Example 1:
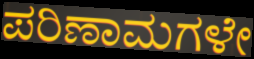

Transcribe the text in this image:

ಪರಿಣಾಮಗಳೇ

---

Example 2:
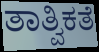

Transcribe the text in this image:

ತಾತ್ವಿಕತೆ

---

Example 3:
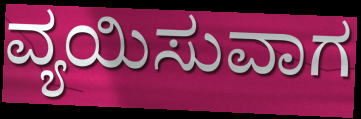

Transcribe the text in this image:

ವ್ಯಯಿಸುವಾಗ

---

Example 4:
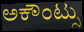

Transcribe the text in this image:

ಅಕೌಂಟ್ಸು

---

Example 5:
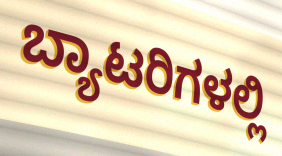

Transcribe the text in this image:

ಬ್ಯಾಟರಿಗಳಲ್ಲಿ